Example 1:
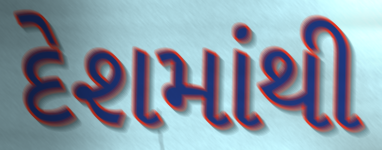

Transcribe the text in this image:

દેશમાંથી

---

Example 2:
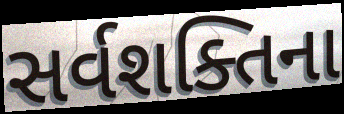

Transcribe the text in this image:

સર્વશક્તિના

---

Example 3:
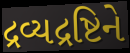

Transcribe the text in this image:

દ્રવ્યદ્રષ્ટિને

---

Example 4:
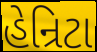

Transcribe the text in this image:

હેન્રિટા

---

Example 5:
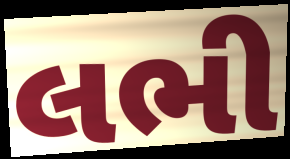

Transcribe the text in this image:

લભી